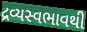
દ્રવ્યસ્વભાવથી